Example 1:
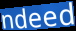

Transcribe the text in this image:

ndeed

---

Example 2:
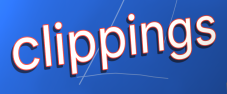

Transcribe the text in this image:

clippings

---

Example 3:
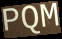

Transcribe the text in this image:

PQM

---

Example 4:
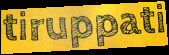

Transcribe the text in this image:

tiruppati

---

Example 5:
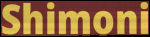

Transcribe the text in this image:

Shimoni